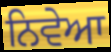
ਨਿਵੇਆ